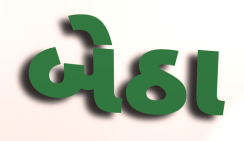
બેઠા